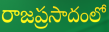
రాజప్రసాదంలో